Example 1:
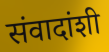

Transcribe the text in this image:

संवादांशी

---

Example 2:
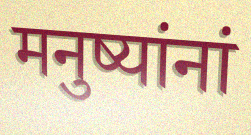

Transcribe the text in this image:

मनुष्यांनां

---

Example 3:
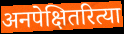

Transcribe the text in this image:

अनपेक्षितरित्या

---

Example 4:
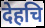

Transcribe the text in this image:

देहचि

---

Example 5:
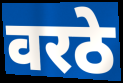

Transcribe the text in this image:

वरठे